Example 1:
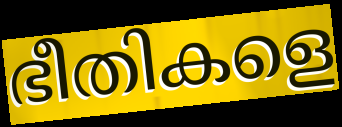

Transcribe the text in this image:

ഭീതികളെ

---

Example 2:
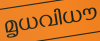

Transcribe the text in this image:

മൃധവിധൗ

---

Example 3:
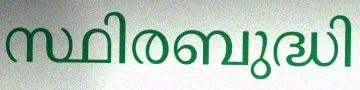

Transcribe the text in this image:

സ്ഥിരബുദ്ധി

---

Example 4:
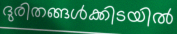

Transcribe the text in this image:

ദുരിതങ്ങൾക്കിടയിൽ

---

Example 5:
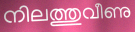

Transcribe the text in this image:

നിലത്തുവീണു